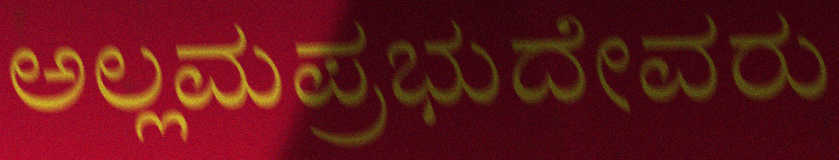
ಅಲ್ಲಮಪ್ರಭುದೇವರು